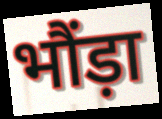
भौंड़ा